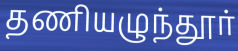
தணியழுந்தூர்